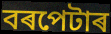
বৰপেটাৰ